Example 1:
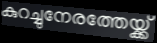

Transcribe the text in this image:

കുറച്ചുനേരത്തേയ്ക്ക്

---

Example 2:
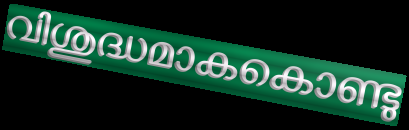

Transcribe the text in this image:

വിശുദ്ധമാകകൊണ്ടു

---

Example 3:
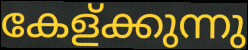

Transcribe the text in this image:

കേള്ക്കുന്നു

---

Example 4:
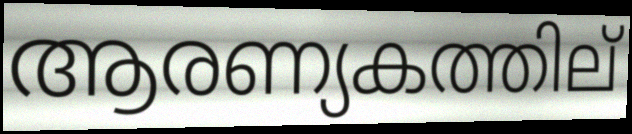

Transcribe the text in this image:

ആരണ്യകത്തില്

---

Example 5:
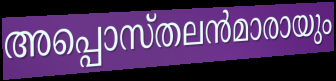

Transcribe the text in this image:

അപ്പൊസ്തലൻമാരായും